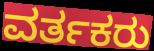
ವರ್ತಕರು